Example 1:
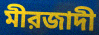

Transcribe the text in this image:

মীরজাদী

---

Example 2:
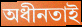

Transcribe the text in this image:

অধীনতাই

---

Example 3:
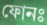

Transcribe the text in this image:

ফোনঃ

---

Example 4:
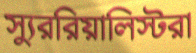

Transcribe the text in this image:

স্যুররিয়ালিস্টরা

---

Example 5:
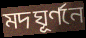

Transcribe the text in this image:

মদঘূর্ণনে